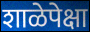
शाळेपेक्षा